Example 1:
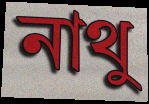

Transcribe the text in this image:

নাথু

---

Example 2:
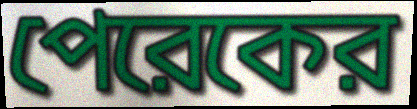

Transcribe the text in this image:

পেরেকের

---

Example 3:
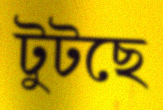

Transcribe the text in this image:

টুটছে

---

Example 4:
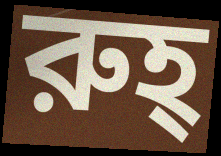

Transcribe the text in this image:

রুহ্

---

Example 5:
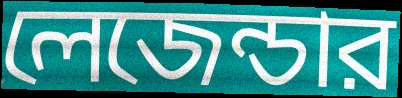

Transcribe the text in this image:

লেজেন্ডার